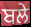
ਬਲੇ